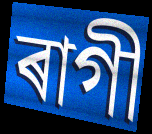
ৰাগী